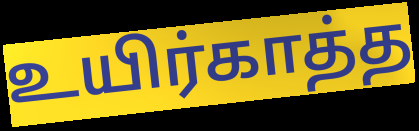
உயிர்காத்த